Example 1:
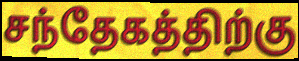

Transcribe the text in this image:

சந்தேகத்திற்கு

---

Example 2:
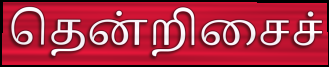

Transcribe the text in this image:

தென்றிசைச்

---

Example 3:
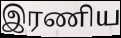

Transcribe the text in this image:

இரணிய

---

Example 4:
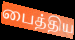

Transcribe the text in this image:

பைத்திய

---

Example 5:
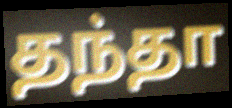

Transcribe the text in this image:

தந்தா